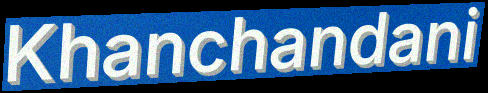
Khanchandani